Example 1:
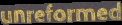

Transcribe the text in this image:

unreformed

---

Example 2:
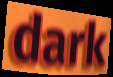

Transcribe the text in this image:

dark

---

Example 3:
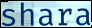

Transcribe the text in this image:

shara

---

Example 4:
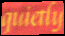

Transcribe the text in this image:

quietly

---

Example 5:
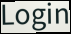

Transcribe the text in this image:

Login